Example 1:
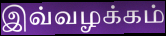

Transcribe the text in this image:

இவ்வழக்கம்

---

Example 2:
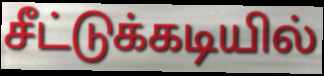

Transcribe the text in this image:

சீட்டுக்கடியில்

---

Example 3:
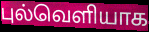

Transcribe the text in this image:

புல்வெளியாக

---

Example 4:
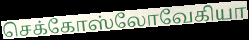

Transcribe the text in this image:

செக்கோஸ்லோவேகியா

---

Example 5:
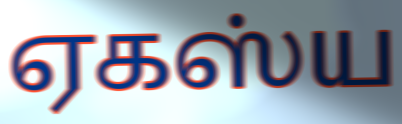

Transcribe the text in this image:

ஏகஸ்ய